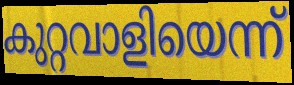
കുറ്റവാളിയെന്ന്